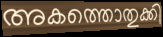
അകത്തൊതുക്കി